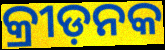
କ୍ରୀଡ଼ନକ